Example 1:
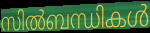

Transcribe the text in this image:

സിൽബന്ധികൾ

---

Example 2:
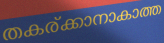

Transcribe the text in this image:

തകര്ക്കാനാകാത്ത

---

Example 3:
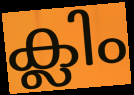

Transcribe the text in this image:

ക്ലിം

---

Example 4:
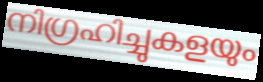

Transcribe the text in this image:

നിഗ്രഹിച്ചുകളയും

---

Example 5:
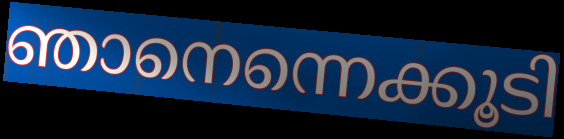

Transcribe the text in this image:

ഞാനെന്നെക്കൂടി